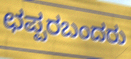
ಛಪ್ಪರಬಂದರು